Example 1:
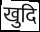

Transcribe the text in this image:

खुदि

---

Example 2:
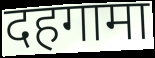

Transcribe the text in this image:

दहगामा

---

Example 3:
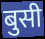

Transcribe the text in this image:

बुसी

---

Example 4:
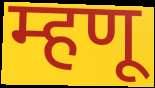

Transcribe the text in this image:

म्हणू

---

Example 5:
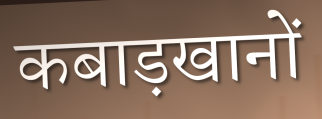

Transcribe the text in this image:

कबाड़खानों